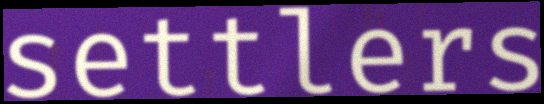
settlers